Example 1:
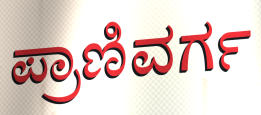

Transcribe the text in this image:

ಪ್ರಾಣಿವರ್ಗ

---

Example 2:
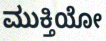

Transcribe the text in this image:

ಮುಕ್ತಿಯೋ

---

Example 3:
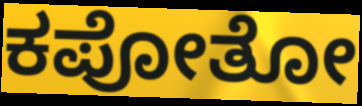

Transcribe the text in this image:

ಕಪೋತೋ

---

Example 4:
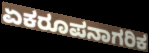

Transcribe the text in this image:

ಏಕರೂಪನಾಗರಿಕ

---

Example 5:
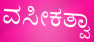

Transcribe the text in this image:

ವಸೀಕತ್ವಾ